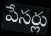
పేసర్లు